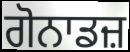
ਗੋਨਾਡਜ਼